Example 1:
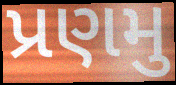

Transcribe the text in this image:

પ્રણમુ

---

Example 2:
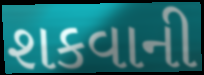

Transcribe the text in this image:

શકવાની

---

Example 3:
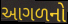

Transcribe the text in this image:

આગળનો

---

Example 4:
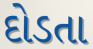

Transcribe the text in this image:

દોડતા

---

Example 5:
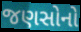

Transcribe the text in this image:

જણસોનો